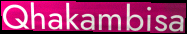
Qhakambisa